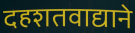
दहशतवाद्याने